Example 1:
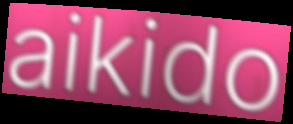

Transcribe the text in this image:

aikido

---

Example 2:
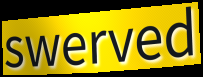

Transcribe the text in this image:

swerved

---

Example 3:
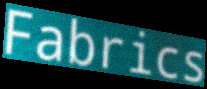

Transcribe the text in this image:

Fabrics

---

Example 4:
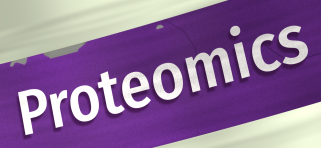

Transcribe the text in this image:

Proteomics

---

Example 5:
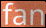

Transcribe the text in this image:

fan